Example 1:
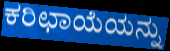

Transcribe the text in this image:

ಕರಿಛಾಯೆಯನ್ನು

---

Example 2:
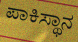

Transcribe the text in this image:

ಪಾಕಿಸ್ಥಾನ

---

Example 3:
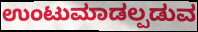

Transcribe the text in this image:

ಉಂಟುಮಾಡಲ್ಪಡುವ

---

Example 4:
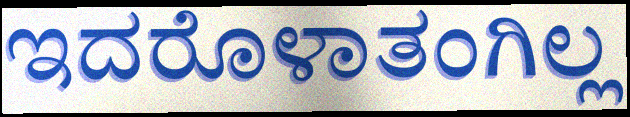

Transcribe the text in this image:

ಇದರೊಳಾತಂಗಿಲ್ಲ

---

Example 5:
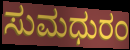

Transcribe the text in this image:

ಸುಮಧುರಂ